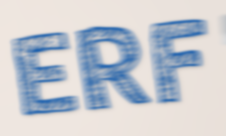
ERF